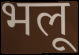
भलू